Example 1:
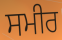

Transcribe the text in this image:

ਸਮੀਰ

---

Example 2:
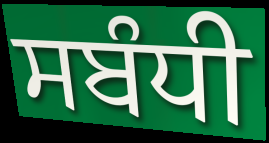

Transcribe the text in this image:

ਸਬੰਧੀ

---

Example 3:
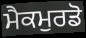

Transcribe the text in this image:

ਮੈਕਮੁਰਡੋ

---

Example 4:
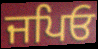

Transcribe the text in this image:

ਜਪਿਓ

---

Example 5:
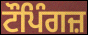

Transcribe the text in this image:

ਟੌਪਿੰਗਜ਼